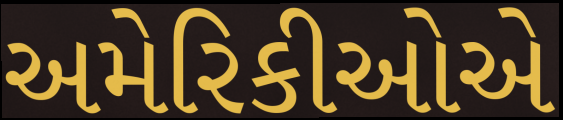
અમેરિકીઓએ